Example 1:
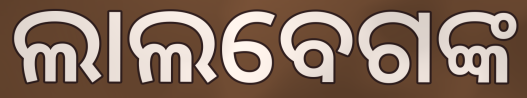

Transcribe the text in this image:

ଲାଲବେଗଙ୍କ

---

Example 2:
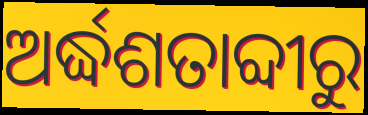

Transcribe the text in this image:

ଅର୍ଦ୍ଧଶତାବ୍ଦୀରୁ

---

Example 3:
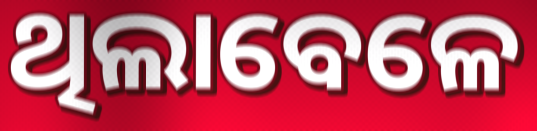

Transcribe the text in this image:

ଥିଲାବେଳେ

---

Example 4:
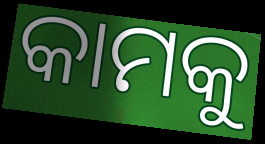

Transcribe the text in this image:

କାମକୁ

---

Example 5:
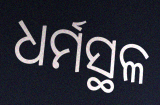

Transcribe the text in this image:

ଧର୍ମସ୍ଥଳ